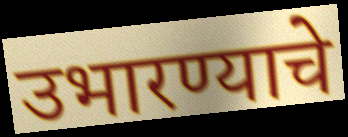
उभारण्याचे